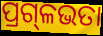
ପ୍ରଗ୍‍ଳଭତା